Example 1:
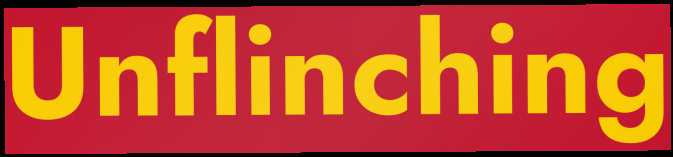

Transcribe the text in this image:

Unflinching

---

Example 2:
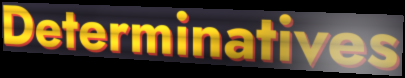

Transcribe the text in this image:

Determinatives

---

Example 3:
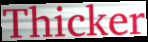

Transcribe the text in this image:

Thicker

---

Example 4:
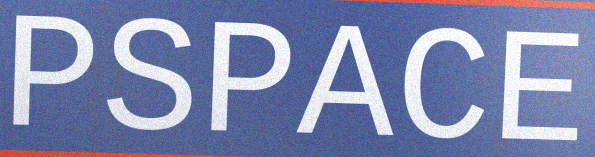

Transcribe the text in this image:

PSPACE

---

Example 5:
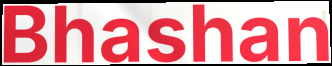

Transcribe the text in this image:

Bhashan